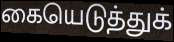
கையெடுத்துக்